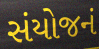
સંયોજનં